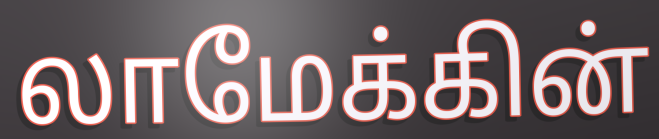
லாமேக்கின்